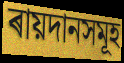
ৰায়দানসমূহ